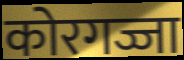
कोरगज्जा